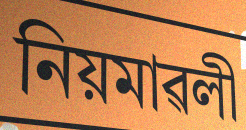
নিয়মাৱলী